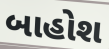
બાહોશ